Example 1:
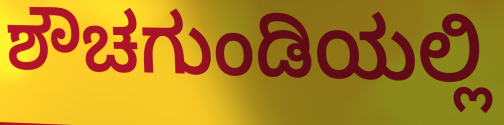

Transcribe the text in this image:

ಶೌಚಗುಂಡಿಯಲ್ಲಿ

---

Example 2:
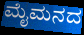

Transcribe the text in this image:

ಮೈಮನದ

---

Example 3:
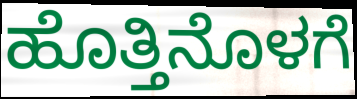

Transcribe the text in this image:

ಹೊತ್ತಿನೊಳಗೆ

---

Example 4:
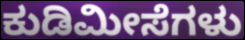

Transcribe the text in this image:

ಕುಡಿಮೀಸೆಗಳು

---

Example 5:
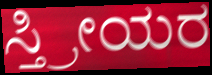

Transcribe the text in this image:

ಸ್ತ್ರೀಯರ